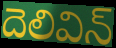
దెలివిన్